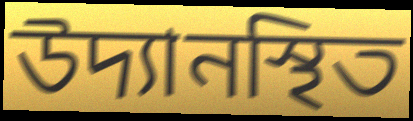
উদ্যানস্থিত